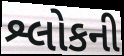
શ્લોકની